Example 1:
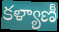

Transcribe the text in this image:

కళ్యాణీ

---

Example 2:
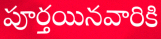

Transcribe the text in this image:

పూర్తయినవారికి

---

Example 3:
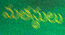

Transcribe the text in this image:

మతస్థులు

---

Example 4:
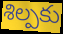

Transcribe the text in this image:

శిల్పకు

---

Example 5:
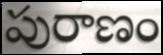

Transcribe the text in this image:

పురాణం